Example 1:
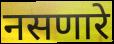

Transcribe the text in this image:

नसणारे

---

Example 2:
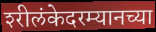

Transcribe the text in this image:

श्रीलंकेदरम्यानच्या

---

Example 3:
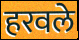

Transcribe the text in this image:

हरवले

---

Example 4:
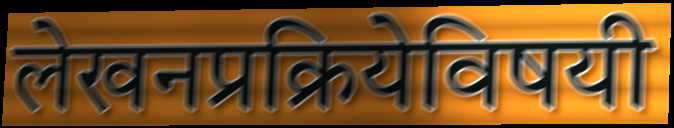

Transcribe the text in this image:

लेखनप्रक्रियेविषयी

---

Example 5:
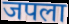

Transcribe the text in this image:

जपला